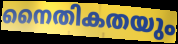
നൈതികതയും